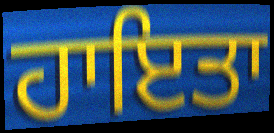
ਹਾਇਤਾ